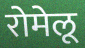
रोमेलू